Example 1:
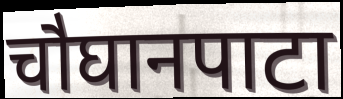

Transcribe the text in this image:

चौघानपाटा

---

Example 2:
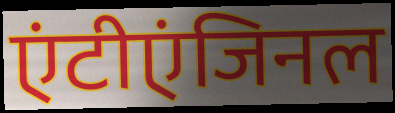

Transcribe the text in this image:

एंटीएंजिनल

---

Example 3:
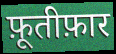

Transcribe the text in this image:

फ़ूतीफ़ार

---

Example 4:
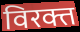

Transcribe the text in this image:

विरक्त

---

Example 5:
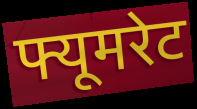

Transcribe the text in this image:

फ्यूमरेट